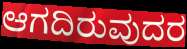
ಆಗದಿರುವುದರ